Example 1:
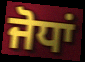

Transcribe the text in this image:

ਜੋਧਾਂ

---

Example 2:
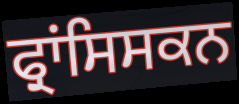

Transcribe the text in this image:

ਫ੍ਰਾਂਸਿਸਕਨ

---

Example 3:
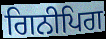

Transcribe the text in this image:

ਗਿਨੀਪਿਗ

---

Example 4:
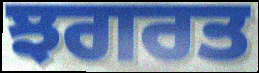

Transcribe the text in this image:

ਝਗਰਤ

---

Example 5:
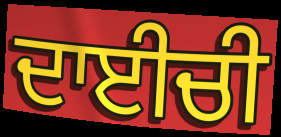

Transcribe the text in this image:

ਦਾਈਚੀ